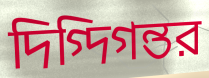
দিগ্দিগন্তর